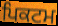
ਪਿਕਟਮ